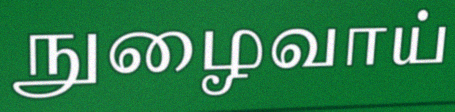
நுழைவாய்